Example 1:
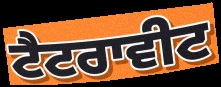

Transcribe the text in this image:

ਟੈਟਰਾਵੀਟ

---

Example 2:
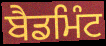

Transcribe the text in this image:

ਬੈਡਮਿੰਟ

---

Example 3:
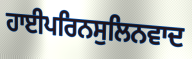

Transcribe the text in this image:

ਹਾਈਪਰਿਨਸੁਲਿਨਵਾਦ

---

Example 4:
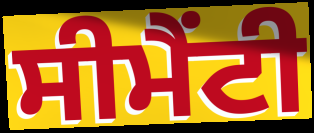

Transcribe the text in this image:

ਸੀਮੈਂਟੀ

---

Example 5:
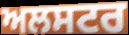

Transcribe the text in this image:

ਅਲਸਟਰ